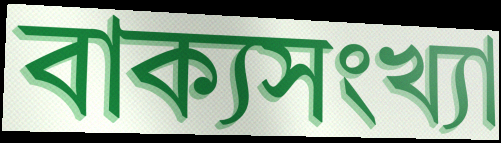
বাক্যসংখ্যা